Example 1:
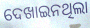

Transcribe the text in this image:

ଦେଖାଇନଥିଲା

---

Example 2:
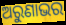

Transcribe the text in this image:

ଅରୁଣାଭର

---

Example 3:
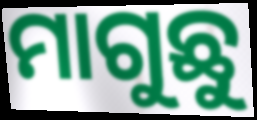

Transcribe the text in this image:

ମାଗୁଛୁ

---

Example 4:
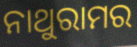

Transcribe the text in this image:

ନାଥୁରାମର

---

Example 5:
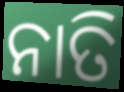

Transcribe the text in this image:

ନାତି